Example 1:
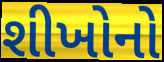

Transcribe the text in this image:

શીખોનો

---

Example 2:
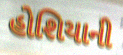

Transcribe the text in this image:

હોશિયાની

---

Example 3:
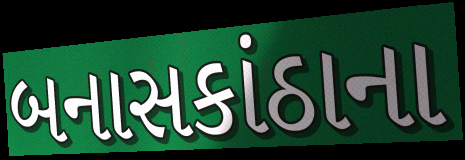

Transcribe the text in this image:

બનાસકાંઠાના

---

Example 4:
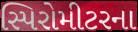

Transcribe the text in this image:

સ્પિરોમીટરના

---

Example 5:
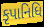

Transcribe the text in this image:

કૃપાનિધિ